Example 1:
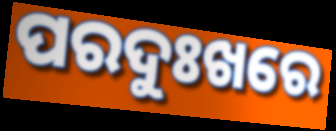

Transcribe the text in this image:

ପରଦୁଃଖରେ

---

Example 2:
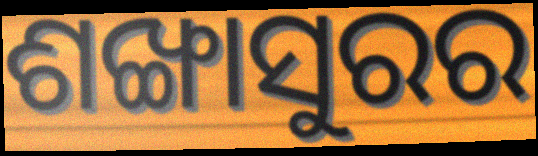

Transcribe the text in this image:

ଶଙ୍ଖାସୁରର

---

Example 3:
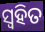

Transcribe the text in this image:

ସ୍ୱହିତ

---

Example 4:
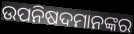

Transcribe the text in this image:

ଉପନିଷଦମାନଙ୍କର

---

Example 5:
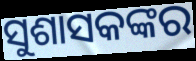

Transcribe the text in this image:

ସୁଶାସକଙ୍କର